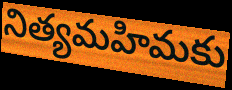
నిత్యమహిమకు